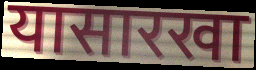
यासारखा